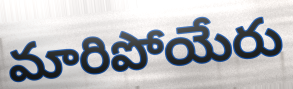
మారిపోయేరు